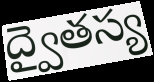
ద్వైతస్య